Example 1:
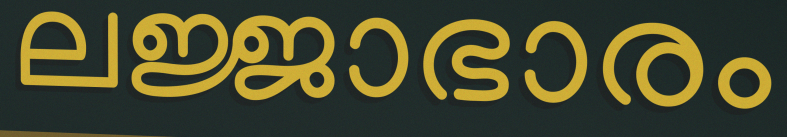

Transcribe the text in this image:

ലജ്ജാഭാരം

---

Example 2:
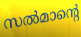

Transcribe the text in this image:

സൽമാന്റെ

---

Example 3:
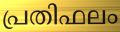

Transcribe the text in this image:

പ്രതിഫലം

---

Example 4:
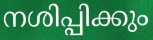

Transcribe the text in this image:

നശിപ്പിക്കും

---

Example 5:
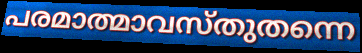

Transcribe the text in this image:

പരമാത്മാവസ്തുതന്നെ